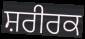
ਸ਼ਰੀਰਕ